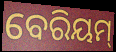
ବେରିୟମ୍